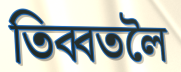
তিব্বতলৈ